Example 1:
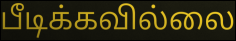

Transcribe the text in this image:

பீடிக்கவில்லை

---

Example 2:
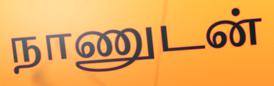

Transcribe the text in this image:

நாணுடன்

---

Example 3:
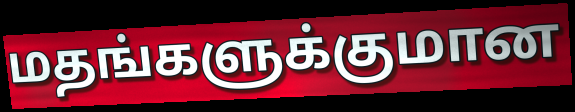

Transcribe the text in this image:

மதங்களுக்குமான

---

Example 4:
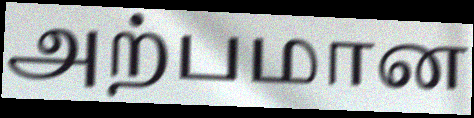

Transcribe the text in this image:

அற்பமான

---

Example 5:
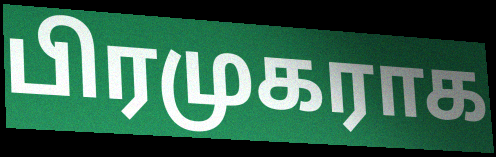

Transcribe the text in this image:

பிரமுகராக